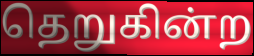
தெறுகின்ற